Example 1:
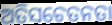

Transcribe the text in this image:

ଅତିସଚେତନତା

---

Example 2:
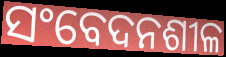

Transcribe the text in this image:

ସଂବେଦନଶୀଳ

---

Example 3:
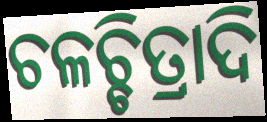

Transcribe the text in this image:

ଚଳଚ୍ଚିତ୍ରାଦି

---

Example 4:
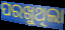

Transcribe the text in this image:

ପରଖୁଥିଲା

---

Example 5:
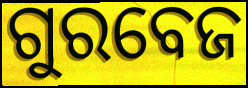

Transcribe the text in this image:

ଗୁରବେଜ